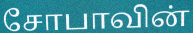
சோபாவின்